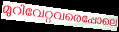
മുറിവേറ്റവരെപ്പോലെ